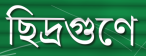
ছিদ্রগুণে